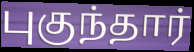
புகுந்தார்